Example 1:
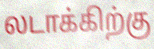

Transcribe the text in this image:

லடாக்கிற்கு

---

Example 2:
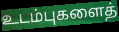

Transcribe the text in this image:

உடம்புகளைத்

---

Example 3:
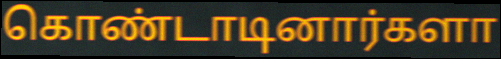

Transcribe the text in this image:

கொண்டாடினார்களா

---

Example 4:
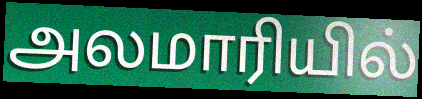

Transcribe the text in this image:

அலமாரியில்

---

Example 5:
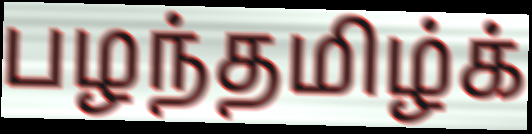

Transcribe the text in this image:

பழந்தமிழ்க்